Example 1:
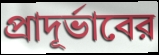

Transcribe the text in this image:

প্রাদূর্ভাবের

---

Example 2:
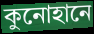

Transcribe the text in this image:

কুনোহানে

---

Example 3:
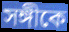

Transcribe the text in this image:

সঙ্গীকে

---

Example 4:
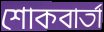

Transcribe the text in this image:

শোকবার্তা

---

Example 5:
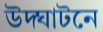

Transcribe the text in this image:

উদ্ঘাটনে